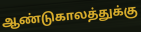
ஆண்டுகாலத்துக்கு